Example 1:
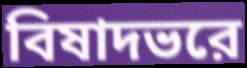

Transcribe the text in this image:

বিষাদভরে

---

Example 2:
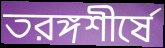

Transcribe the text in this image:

তরঙ্গশীর্ষে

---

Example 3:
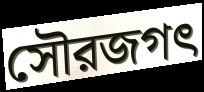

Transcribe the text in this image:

সৌরজগৎ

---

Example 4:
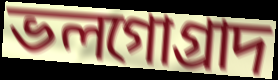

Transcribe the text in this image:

ভলগোগ্রাদ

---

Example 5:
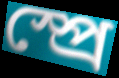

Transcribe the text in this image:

স্প্রে